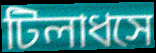
টিলাধসে